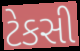
ટેકસી